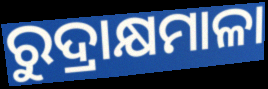
ରୁଦ୍ରାକ୍ଷମାଳା